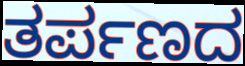
ತರ್ಪಣದ